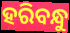
ହରିବନ୍ଧୁ